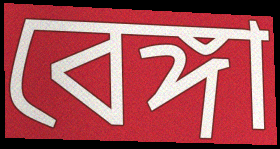
বেঙ্গা